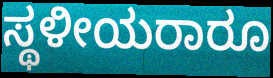
ಸ್ಥಳೀಯರಾರೂ